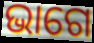
ଭାଗେ